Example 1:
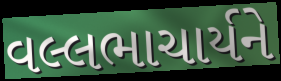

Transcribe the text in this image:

વલ્લભાચાર્યને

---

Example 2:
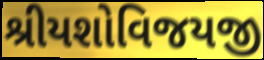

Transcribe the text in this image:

શ્રીયશોવિજયજી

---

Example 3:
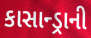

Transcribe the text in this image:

કાસાન્ડ્રાની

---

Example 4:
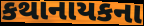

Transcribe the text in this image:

કથાનાયકના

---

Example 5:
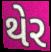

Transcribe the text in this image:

થેર